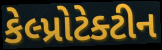
કેલ્પ્રોટેક્ટીન